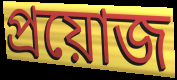
প্ৰয়োজ